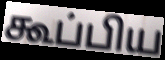
கூப்பிய